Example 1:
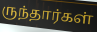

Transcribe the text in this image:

ருந்தார்கள்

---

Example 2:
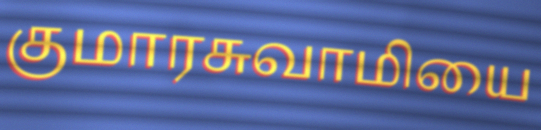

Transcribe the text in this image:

குமாரசுவாமியை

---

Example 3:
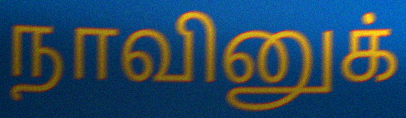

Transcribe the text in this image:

நாவினுக்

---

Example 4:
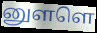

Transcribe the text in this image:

னுளளெ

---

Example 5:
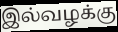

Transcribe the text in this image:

இல்வழக்கு